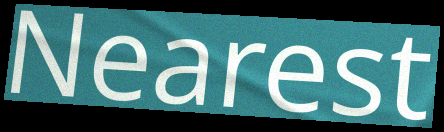
Nearest